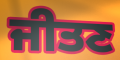
ਜੀਤਣ